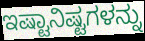
ಇಷ್ಟಾನಿಷ್ಟಗಳನ್ನು